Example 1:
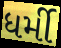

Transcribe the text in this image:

ધર્મી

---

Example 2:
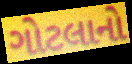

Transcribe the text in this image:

ગોટલાનો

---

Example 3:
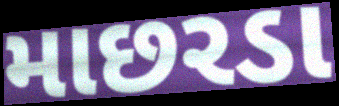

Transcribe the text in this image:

માછરડા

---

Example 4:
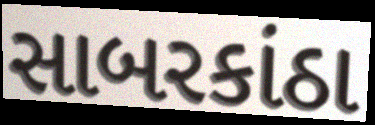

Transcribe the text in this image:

સાબરકાંઠા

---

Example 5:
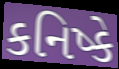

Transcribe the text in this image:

કનિષ્કે